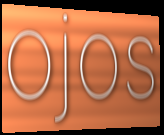
ojos